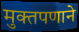
मुक्तपणाने